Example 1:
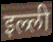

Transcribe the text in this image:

इल्ली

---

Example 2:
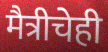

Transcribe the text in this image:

मैत्रीचेही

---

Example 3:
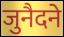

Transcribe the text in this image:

जुनैदने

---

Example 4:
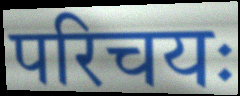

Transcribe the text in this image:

परिचयः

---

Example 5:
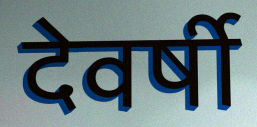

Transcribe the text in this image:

देवर्षी